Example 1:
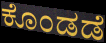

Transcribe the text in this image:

ಕೊಂಡಡೆ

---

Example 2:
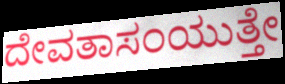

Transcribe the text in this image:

ದೇವತಾಸಂಯುತ್ತೇ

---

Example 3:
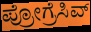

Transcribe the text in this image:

ಪ್ರೋಗ್ರೆಸಿವ್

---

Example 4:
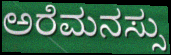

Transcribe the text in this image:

ಅರೆಮನಸ್ಸು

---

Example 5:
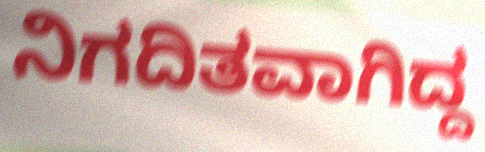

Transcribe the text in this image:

ನಿಗದಿತವಾಗಿದ್ದ